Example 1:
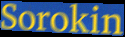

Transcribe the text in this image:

Sorokin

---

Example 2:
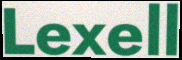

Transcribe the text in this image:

Lexell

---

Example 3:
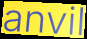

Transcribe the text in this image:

anvil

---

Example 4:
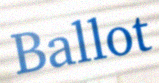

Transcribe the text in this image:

Ballot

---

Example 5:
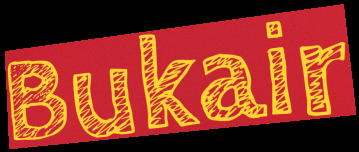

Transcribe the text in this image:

Bukair